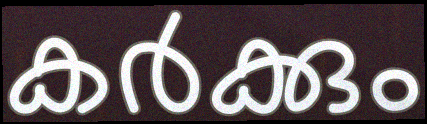
കർക്കും